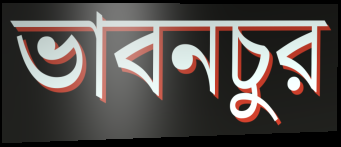
ভাবনচুর